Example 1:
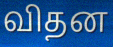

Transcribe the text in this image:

விதன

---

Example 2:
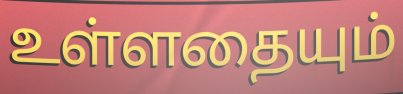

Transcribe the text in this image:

உள்ளதையும்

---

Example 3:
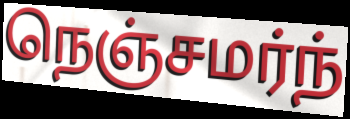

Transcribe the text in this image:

நெஞ்சமர்ந்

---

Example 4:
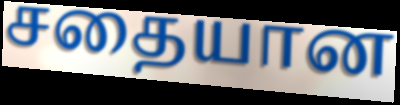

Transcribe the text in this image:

சதையான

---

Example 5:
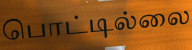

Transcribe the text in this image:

பொட்டில்லை